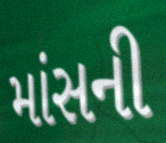
માંસની